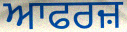
ਆਫਰਜ਼